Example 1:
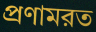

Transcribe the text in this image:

প্রণামরত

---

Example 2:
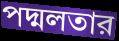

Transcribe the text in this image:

পদ্মলতার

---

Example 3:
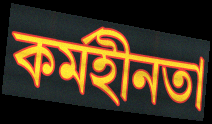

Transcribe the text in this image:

কর্মহীনতা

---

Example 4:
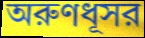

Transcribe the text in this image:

অরুণধূসর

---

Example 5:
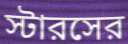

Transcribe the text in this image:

স্টারসের